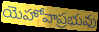
యెహోవాప్రభువు